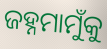
ଜହ୍ନମାମୁଁକୁ